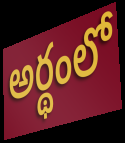
అర్థంలో